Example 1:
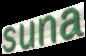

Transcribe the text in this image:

suna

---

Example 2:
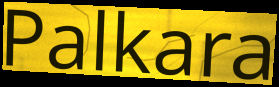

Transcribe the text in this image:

Palkara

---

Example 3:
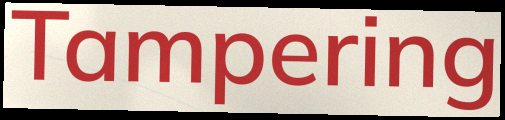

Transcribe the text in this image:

Tampering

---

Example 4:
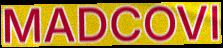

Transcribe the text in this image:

MADCOVI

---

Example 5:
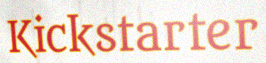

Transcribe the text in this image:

Kickstarter